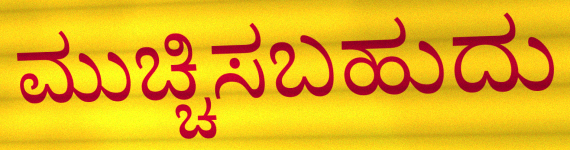
ಮುಚ್ಚಿಸಬಹುದು